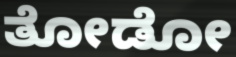
ತೋಡೋ